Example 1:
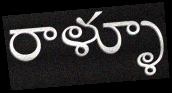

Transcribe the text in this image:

రాళ్ళూ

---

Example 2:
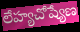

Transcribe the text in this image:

లేహ్యచోష్యేణ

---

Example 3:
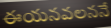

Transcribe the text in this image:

ఈయనవలననే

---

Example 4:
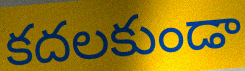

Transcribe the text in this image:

కదలకుండా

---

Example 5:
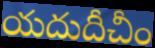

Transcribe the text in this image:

యదుదీచీం